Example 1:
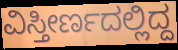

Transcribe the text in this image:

ವಿಸ್ತೀರ್ಣದಲ್ಲಿದ್ದ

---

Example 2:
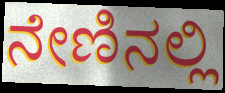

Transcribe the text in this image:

ನೇಣಿನಲ್ಲಿ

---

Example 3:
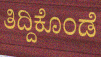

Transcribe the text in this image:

ತಿದ್ದಿಕೊಂಡೆ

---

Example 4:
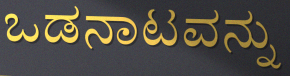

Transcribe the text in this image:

ಒಡನಾಟವನ್ನು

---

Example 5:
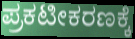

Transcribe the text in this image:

ಪ್ರಕಟೀಕರಣಕ್ಕೆ